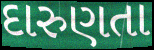
દારુણતા